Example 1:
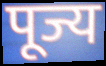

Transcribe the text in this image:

पूज्य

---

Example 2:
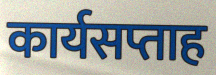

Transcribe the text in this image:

कार्यसप्ताह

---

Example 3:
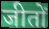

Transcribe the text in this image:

जीतों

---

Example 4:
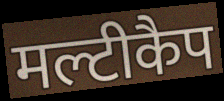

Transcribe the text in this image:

मल्‍टीकैप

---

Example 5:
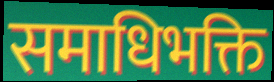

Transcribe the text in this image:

समाधिभक्ति